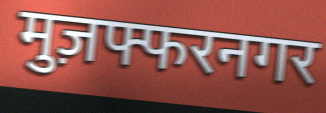
मुज़फ्फरनगर